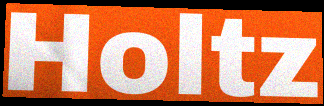
Holtz